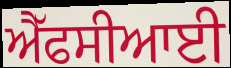
ਐੱਫਸੀਆਈ